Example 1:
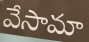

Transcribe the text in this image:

వేసామా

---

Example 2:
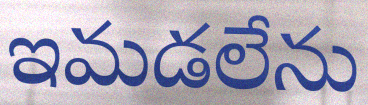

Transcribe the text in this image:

ఇమడలేను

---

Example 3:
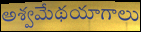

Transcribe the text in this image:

అశ్వమేథయాగాలు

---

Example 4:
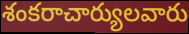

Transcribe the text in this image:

శంకరాచార్యులవారు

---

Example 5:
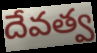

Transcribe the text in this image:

దేవత్వ